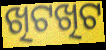
ଖିଟଖିଟ